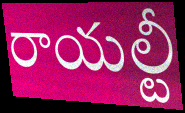
రాయల్టీ